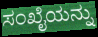
ಸಂಖೈಯನ್ನು